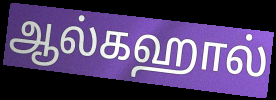
ஆல்கஹால்